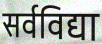
सर्वविद्या